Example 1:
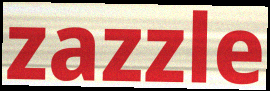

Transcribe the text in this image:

zazzle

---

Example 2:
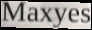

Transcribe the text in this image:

Maxyes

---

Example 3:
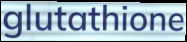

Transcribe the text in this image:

glutathione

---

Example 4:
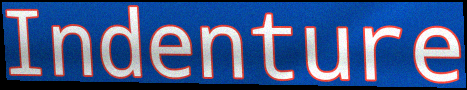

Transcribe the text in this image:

Indenture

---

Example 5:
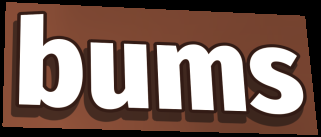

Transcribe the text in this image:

bums